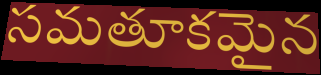
సమతూకమైన